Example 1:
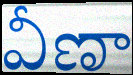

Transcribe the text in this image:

వీణా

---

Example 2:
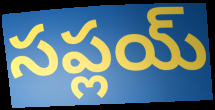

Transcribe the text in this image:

సప్లయ్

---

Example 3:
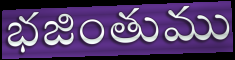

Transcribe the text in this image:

భజింతుము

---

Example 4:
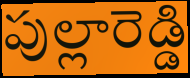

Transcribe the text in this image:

పుల్లారెడ్డి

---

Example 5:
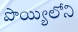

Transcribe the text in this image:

పొయ్యిలోని